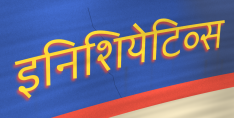
इनिशियेटिव्स